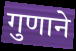
गुणाने